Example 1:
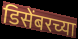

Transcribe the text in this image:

डिसेंबरच्या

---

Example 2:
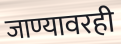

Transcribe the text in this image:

जाण्यावरही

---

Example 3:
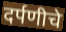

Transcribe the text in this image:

दर्पणीचे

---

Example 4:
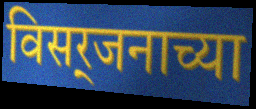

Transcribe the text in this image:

विसर्जनाच्या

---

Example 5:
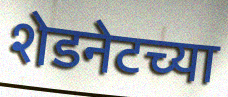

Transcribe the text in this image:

शेडनेटच्या